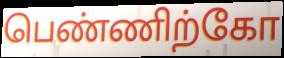
பெண்ணிற்கோ